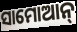
ସାମୋଆନ୍